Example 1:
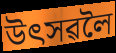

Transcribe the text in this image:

উৎসৱলৈ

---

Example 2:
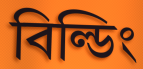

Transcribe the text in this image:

বিল্ডিং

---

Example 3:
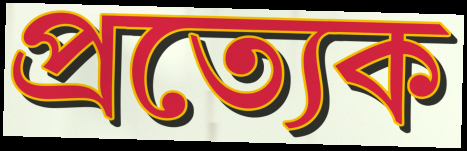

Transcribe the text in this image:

প্ৰত্য়েক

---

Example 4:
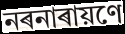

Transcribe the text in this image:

নৰনাৰায়ণে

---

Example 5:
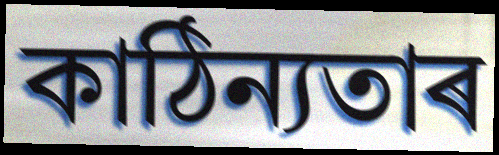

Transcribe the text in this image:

কাঠিন্যতাৰ